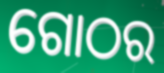
ଗୋଠର